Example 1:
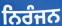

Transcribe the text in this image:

ਨਿਰੰਜਨ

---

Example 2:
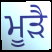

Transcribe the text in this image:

ਮੂੜੈ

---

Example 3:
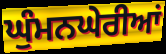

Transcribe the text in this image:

ਘੁੰਮਨਘੇਰੀਆਂ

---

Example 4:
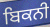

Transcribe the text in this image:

ਬਿਕਨੀ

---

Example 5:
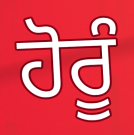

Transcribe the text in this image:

ਹੋਰੂੰ